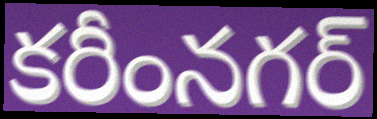
కరీంనగర్